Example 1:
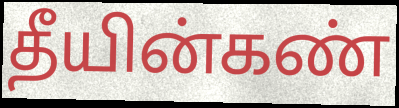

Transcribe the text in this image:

தீயின்கண்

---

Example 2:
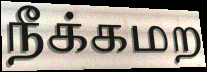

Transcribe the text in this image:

நீக்கமற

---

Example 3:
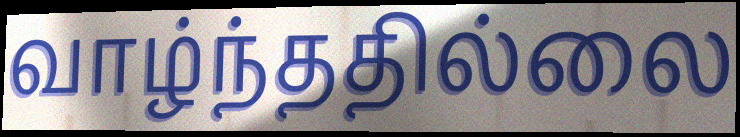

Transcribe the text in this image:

வாழ்ந்ததில்லை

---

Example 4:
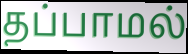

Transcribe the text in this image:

தப்பாமல்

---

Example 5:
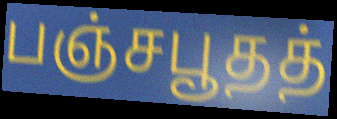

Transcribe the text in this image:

பஞ்சபூதத்